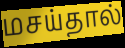
மசய்தால்